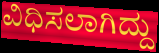
ವಿಧಿಸಲಾಗಿದ್ದು